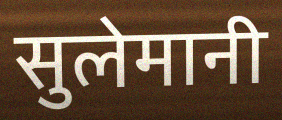
सुलेमानी